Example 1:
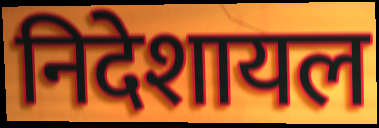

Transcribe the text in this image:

निदेशायल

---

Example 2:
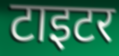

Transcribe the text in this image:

टाइटर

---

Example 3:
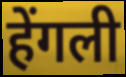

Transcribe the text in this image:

हेंगली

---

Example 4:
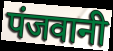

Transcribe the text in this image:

पंजवानी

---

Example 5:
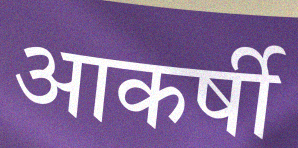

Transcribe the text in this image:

आकर्षी